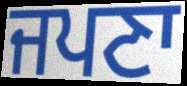
ਜਪਣਾ